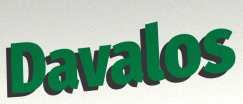
Davalos